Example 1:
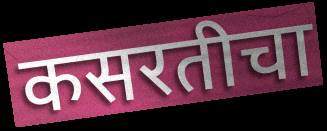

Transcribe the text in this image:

कसरतीचा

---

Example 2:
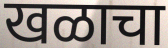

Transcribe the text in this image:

खळाचा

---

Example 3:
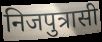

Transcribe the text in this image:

निजपुत्रासी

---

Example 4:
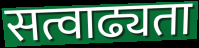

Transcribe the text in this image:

सत्वाढ्यता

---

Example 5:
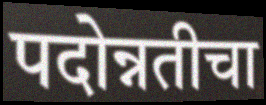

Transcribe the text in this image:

पदोन्नतीचा